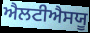
ਐਲਟੀਐਸਯੂ